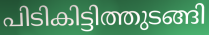
പിടികിട്ടിത്തുടങ്ങി